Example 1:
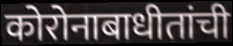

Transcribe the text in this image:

कोरोनाबाधीतांची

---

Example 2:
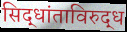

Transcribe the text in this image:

सिद्धांताविरुद्ध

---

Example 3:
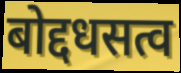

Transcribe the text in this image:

बोद्दधसत्व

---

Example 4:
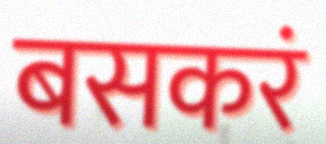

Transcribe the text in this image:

बसकरं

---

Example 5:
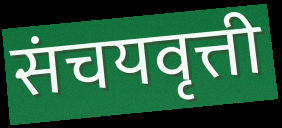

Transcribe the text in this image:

संचयवृत्ती